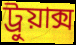
ট্রুয়াক্স